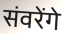
संवरेंगे